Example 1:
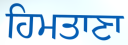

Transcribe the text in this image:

ਹਿਮਤਾਣਾ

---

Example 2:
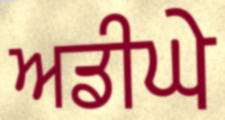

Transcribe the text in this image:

ਅਡੀਘੇ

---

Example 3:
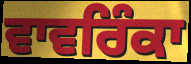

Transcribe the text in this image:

ਵਾਵਰਿੰਕਾ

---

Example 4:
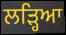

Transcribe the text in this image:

ਲੜ੍ਹਿਆ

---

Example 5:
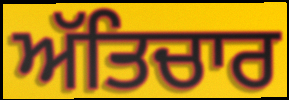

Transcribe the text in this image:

ਅੱਤਿਚਾਰ